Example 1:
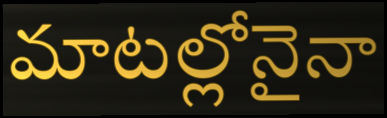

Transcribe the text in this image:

మాటల్లోనైనా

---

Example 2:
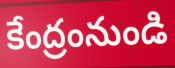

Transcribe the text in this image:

కేంద్రంనుండి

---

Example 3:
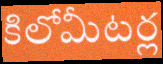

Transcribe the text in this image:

కిలోమీటర్ల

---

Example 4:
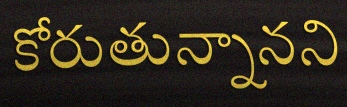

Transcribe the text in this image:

కోరుతున్నానని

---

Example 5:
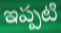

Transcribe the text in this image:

ఇప్పటి